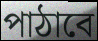
পাঠাবে